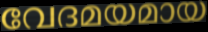
വേദമയമായ